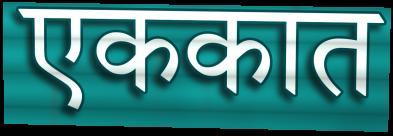
एककात